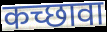
कच्छावा